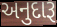
અનુદારૂ